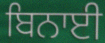
ਬਿਨਾਈ